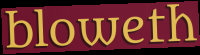
bloweth